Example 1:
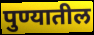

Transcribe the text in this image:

पुण्यातील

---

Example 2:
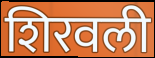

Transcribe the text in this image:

शिरवली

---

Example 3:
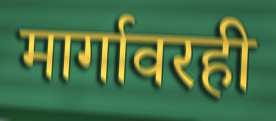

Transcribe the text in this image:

मार्गावरही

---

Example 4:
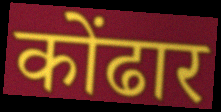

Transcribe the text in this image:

कोंढार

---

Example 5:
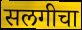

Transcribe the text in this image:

सलगीचा